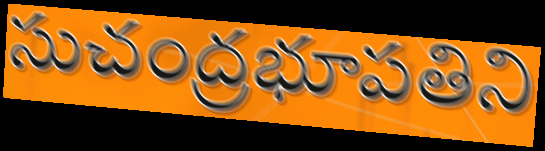
సుచంద్రభూపతిని